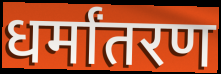
धर्मांतरण